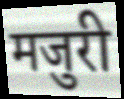
मजुरी